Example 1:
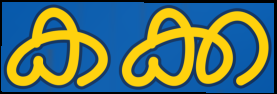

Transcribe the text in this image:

കക്ക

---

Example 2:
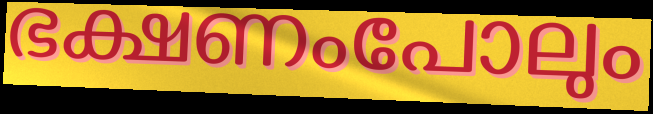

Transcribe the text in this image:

ഭക്ഷണംപോലും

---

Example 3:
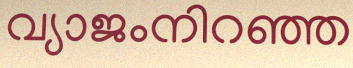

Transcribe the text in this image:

വ്യാജംനിറഞ്ഞ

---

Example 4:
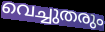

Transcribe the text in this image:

വെച്ചുതരും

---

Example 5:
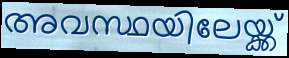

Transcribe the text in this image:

അവസ്ഥയിലേയ്ക്ക്